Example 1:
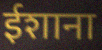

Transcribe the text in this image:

ईशाना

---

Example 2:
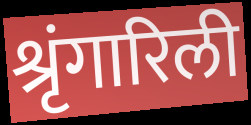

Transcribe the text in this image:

श्रृंगारिली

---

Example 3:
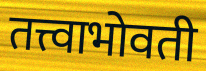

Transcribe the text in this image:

तत्त्वाभोवती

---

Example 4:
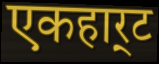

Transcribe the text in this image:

एकहार्ट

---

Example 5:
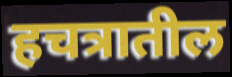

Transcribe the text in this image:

हचत्रातील